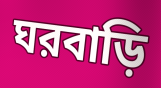
ঘরবাড়ি